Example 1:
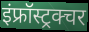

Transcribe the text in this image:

इंफ्रॉस्ट्रक्चर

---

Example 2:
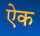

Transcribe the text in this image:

ऐक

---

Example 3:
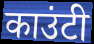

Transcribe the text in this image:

काउंटी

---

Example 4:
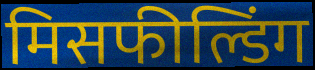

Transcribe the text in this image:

मिसफील्डिंग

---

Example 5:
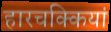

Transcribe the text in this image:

हारचक्कियां